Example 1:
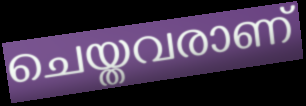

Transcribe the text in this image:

ചെയ്തവരാണ്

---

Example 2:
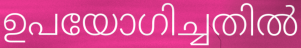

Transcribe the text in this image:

ഉപയോഗിച്ചതിൽ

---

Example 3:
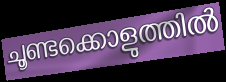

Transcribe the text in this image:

ചൂണ്ടക്കൊളുത്തിൽ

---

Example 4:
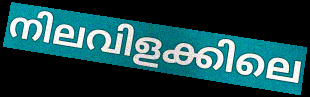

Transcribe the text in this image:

നിലവിളക്കിലെ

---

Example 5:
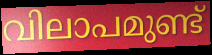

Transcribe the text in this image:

വിലാപമുണ്ട്